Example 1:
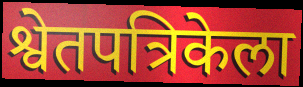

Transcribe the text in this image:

श्वेतपत्रिकेला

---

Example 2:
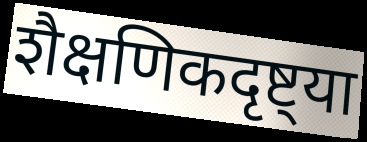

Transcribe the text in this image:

शैक्षणिकदृष्ट्या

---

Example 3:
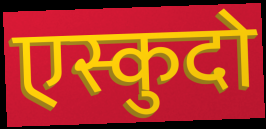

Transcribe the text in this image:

एस्कुदो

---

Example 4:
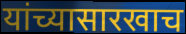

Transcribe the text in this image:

यांच्यासारखाच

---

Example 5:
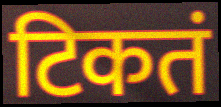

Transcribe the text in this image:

टिकतं